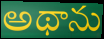
అథాను